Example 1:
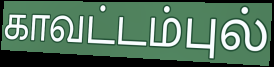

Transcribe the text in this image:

காவட்டம்புல்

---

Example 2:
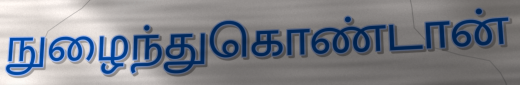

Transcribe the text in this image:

நுழைந்துகொண்டான்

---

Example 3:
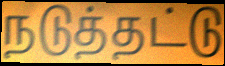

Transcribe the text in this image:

நடுத்தட்டு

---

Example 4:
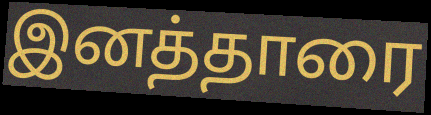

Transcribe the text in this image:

இனத்தாரை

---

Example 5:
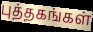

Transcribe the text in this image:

புத்தகங்கள்